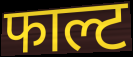
फाल्ट